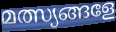
മത്സ്യങ്ങളേ